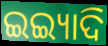
ଇଇ୍ୟାଦି